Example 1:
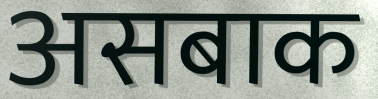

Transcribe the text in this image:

असबाक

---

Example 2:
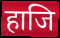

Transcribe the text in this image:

हाजि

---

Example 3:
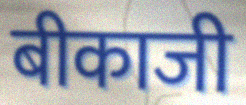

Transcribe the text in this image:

बीकाजी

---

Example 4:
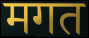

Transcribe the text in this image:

मगत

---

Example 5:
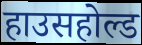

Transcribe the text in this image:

हाउसहोल्ड